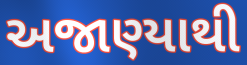
અજાણ્યાથી